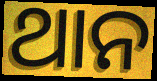
ଥାନ